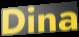
Dina